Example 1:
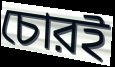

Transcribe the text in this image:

চোরই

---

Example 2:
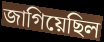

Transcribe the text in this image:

জাগিয়েছিল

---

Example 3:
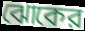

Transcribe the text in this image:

ঝোকের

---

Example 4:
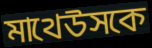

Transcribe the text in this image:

মাথেউসকে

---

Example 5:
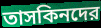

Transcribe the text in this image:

তাসকিনদের